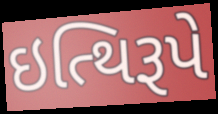
ઇત્થિરૂપે